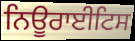
ਨਿਊਰਾਈਟਿਸ